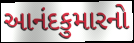
આનંદકુમારનો